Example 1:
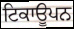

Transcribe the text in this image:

ਟਿਕਾਊਪਨ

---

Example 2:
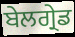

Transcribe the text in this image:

ਬੇਲਗ੍ਰੇਡ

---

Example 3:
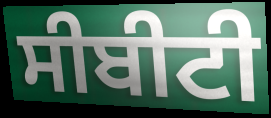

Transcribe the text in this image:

ਸੀਬੀਟੀ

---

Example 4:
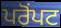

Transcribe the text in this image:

ਪਰੋਂਪਟ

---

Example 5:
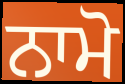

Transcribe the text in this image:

ਨਾਮੋ